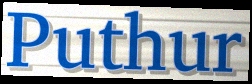
Puthur